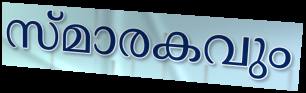
സ്മാരകവും